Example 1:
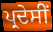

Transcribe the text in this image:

ਪ੍ਰਦੇਸੀਂ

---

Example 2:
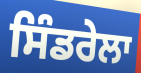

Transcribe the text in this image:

ਸਿੰਡਰੇਲਾ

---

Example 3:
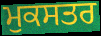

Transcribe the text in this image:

ਮੁਕਸਤਰ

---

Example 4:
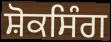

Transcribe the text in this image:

ਸ਼ੋਕਸਿੰਗ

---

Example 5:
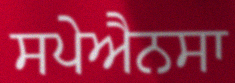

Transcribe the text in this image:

ਸਪੇਐਨਸਾ